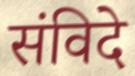
संविदे